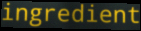
ingredient